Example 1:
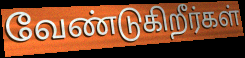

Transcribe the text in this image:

வேண்டுகிறீர்கள்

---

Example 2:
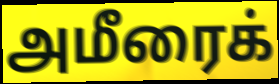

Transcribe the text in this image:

அமீரைக்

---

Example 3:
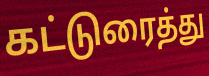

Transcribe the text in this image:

கட்டுரைத்து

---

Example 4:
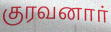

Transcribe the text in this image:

குரவனார்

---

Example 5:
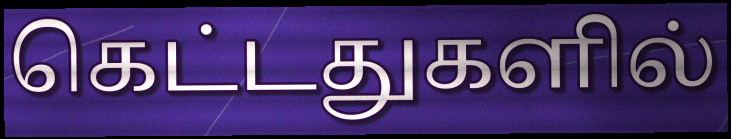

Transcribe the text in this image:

கெட்டதுகளில்